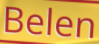
Belen